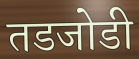
तडजोडी